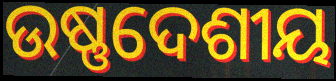
ଉଷ୍ଣଦେଶୀୟ